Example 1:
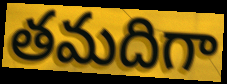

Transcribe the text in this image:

తమదిగా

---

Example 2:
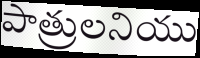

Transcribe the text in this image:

పాత్రులనియు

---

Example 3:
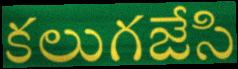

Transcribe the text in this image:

కలుగజేసి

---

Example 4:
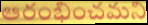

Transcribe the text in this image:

ఆరంభించమని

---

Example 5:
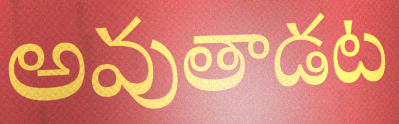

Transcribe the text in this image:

అవుతాడట